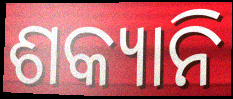
ଶକ୍ୟାନି